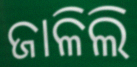
ଜାଳିଲି